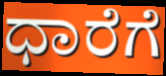
ಧಾರೆಗೆ